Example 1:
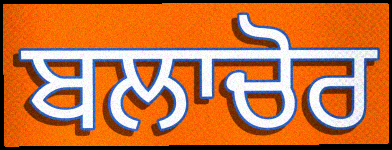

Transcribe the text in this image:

ਬਲਾਚੋਰ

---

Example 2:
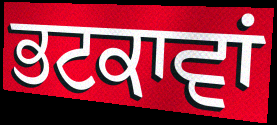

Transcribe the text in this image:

ਭਟਕਾਵਾਂ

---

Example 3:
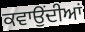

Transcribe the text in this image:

ਕਵਾਉਂਦੀਆਂ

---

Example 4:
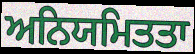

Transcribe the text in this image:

ਅਨਿਯਮਿਤਤਾ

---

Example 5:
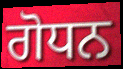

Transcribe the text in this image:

ਗੋਧਨ